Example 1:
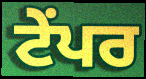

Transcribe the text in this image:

ਟੇਂਪਰ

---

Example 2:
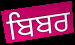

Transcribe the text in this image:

ਬਿਬਰ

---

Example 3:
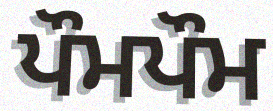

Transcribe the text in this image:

ਪੌਮਪੌਮ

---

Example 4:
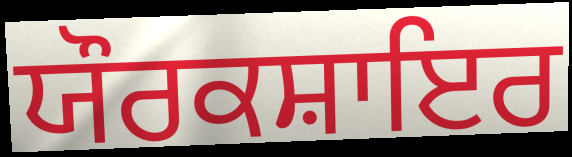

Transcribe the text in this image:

ਯੌਰਕਸ਼ਾਇਰ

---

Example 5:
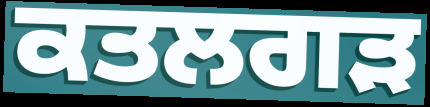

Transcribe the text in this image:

ਕਤਲਗੜ